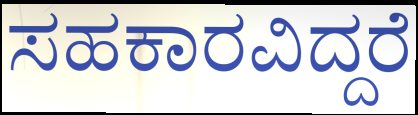
ಸಹಕಾರವಿದ್ದರೆ